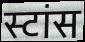
स्टांस